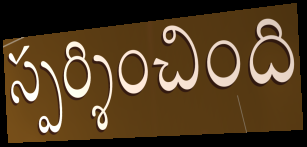
స్పర్శించింది